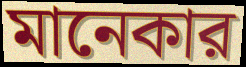
মানেকার